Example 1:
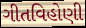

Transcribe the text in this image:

ગીતવિહોણી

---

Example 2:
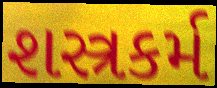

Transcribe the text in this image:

શસ્ત્રકર્મ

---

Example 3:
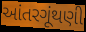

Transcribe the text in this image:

આંતરગૂંથણી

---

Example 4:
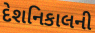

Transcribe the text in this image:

દેશનિકાલની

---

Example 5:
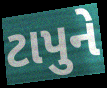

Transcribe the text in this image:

ટાપુને